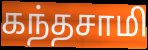
கந்தசாமி